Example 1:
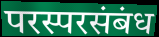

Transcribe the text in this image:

परस्परसंबंध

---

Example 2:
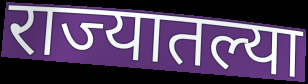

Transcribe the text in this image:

राज्यातल्या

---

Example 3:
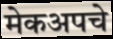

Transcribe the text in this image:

मेकअपचे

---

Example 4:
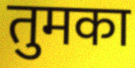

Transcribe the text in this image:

तुमका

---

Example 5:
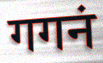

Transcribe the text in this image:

गगनं